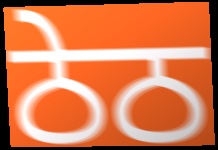
ਠੇਠ